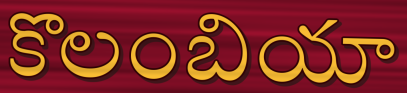
కొలంబియా